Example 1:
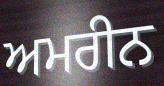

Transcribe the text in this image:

ਅਮਰੀਨ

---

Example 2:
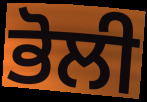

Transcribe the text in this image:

ਭੋਲੀ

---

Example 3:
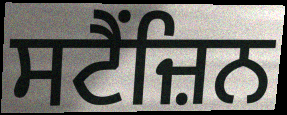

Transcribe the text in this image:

ਸਟੈਂਜ਼ਿਨ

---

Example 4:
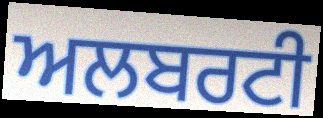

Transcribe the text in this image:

ਅਲਬਰਟੀ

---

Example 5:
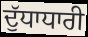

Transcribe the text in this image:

ਦੁੱਧਾਧਾਰੀ